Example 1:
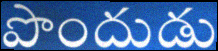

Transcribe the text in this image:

పొందుడు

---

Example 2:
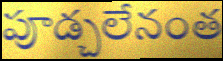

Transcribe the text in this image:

పూడ్చలేనంత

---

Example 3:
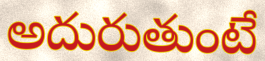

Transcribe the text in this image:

అదురుతుంటే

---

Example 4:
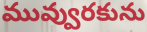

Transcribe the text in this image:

మువ్వురకును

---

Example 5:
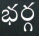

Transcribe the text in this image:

భర్గ